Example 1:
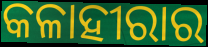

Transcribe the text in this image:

କଳାହୀରାର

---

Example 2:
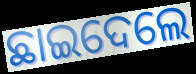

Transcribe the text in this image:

ଛାଇଦେଲେ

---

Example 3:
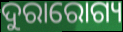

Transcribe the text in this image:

ଦୁରାରୋଗ୍ୟ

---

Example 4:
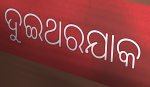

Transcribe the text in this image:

ଦୁଇଥରଯାକ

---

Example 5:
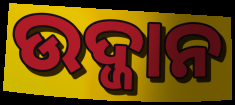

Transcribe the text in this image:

ଉଦ୍ଜାନ